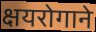
क्षयरोगाने